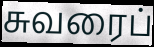
சுவரைப்